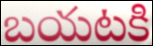
బయటకి